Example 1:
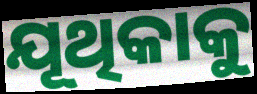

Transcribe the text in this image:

ଯୂଥିକାକୁ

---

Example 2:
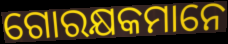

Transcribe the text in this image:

ଗୋରକ୍ଷକମାନେ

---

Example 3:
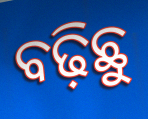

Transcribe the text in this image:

ବଢ଼ିଛୁ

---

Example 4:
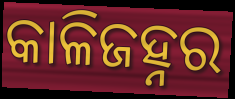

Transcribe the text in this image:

କାଳିଜହ୍ନର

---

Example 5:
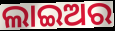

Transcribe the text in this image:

ଲାଇଅର